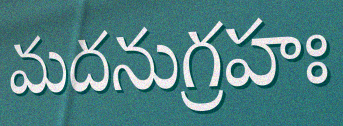
మదనుగ్రహః